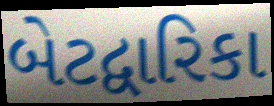
બેટદ્વારિકા